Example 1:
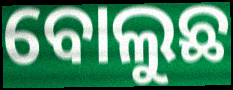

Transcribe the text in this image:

ବୋଲୁଛ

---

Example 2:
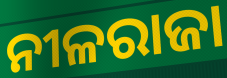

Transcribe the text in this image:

ନୀଳରାଜା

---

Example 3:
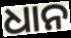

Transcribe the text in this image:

ଧାନ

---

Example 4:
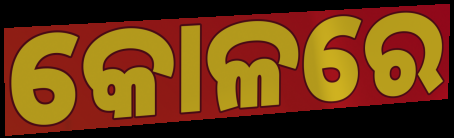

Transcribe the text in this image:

କୋଳରେ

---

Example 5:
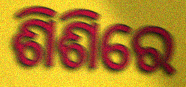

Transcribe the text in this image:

ଶିଶିରେ